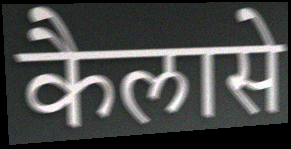
कैलासे